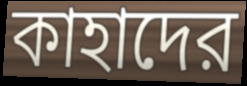
কাহাদের